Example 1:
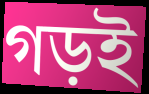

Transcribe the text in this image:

গড়ই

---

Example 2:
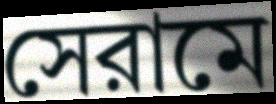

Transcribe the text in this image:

সেরামে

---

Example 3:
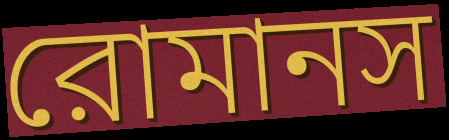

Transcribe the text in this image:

রোমানস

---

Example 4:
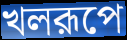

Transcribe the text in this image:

খলরূপে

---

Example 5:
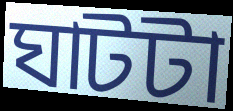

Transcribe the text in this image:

ঘাটটা